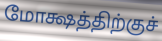
மோக்ஷத்திற்குச்